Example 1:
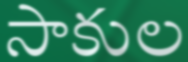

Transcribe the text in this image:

సాకుల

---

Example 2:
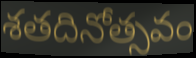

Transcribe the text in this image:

శతదినోత్సవం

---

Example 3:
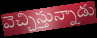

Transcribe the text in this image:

వెచ్చిస్తున్నాడు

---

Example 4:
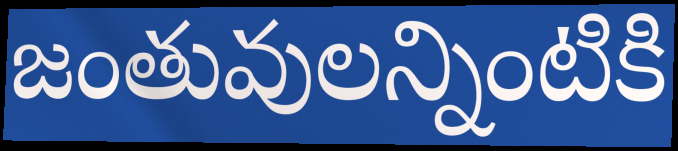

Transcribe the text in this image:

జంతువులన్నింటికి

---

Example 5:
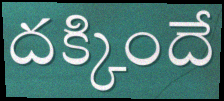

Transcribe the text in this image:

దక్కిందే